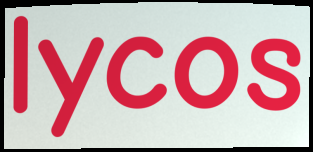
lycos